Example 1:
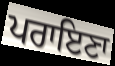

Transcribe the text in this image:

ਪਰਾਇਣਾ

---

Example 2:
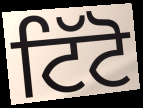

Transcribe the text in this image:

ਟਿੱਟੋ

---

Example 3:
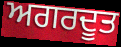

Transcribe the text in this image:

ਅਗਰਦੂਤ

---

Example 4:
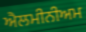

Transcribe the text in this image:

ਐਲਮੀਨੀਅਮ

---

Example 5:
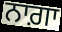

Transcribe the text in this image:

ਨਾਗ਼ਾ